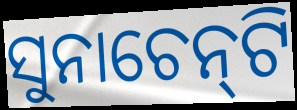
ସୁନାଚେନ୍‍ଟି